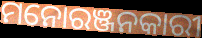
ମନୋରଞ୍ଜନକାରୀ